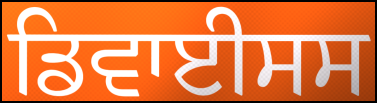
ਡਿਵਾਈਸਸ